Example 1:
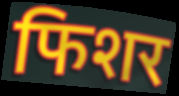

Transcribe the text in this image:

फिशर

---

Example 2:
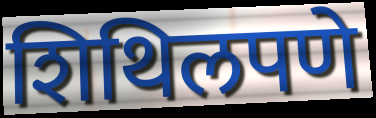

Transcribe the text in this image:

शिथिलपणे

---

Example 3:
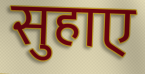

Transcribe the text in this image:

सुहाए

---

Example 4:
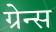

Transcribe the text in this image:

ग्रेन्स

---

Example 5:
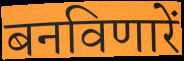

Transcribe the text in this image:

बनविणारें